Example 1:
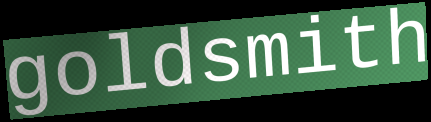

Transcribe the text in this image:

goldsmith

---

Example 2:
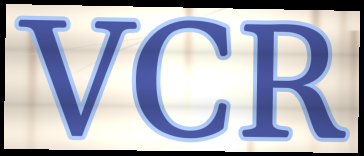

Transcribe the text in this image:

VCR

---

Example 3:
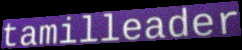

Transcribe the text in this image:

tamilleader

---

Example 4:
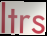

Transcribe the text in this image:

ltrs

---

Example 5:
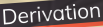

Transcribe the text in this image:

Derivation